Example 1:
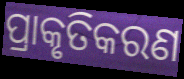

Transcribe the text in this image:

ପ୍ରାକୃତିକରଣ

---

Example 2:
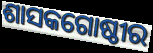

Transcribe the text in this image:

ଶାସକଗୋଷ୍ଠୀର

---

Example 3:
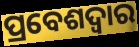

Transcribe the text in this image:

ପ୍ରବେଶଦ୍ଵାର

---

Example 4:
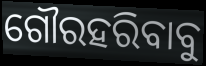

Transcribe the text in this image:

ଗୌରହରିବାବୁ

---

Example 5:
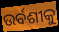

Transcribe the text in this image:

ଉର୍ବଶୀକୁ